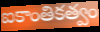
ఐకాంతికత్వం